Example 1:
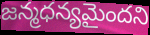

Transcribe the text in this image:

జన్మధన్యమైందని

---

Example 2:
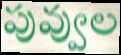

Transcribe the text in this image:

పువ్వుల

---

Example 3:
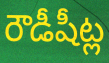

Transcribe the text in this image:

రౌడీషీట్ల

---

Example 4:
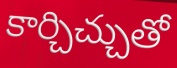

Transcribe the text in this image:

కార్చిచ్చుతో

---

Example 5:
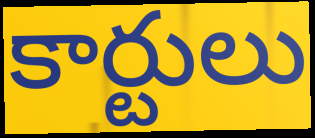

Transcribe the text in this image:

కార్టులు